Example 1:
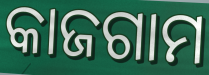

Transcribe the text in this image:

କାଜଗାମ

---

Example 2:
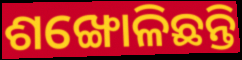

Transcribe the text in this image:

ଶଙ୍ଖୋଳିଛନ୍ତି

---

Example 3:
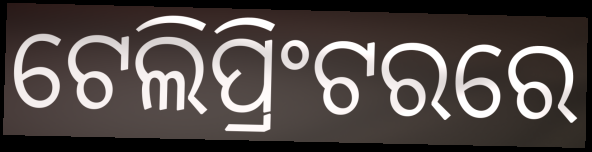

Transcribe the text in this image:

ଟେଲିପ୍ରିଂଟରରେ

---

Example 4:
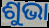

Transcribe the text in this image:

ଶୁଭା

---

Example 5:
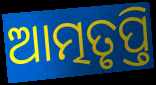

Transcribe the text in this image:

ଆତ୍ମତୃପ୍ତି